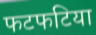
फटफटिया